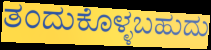
ತಂದುಕೊಳ್ಳಬಹುದು